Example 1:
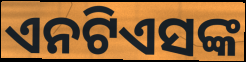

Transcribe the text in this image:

ଏନଟିଏସଙ୍କ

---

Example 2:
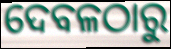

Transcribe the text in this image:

ଦେବଳଠାରୁ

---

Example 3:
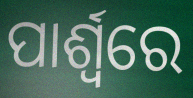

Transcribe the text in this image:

ପାର୍ଶ୍ୱରେ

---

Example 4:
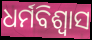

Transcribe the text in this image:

ଧର୍ମବିଶ୍ଵାସ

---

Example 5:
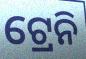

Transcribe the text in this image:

ଟ୍ରେନି